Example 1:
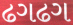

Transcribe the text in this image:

ઢગઢગ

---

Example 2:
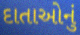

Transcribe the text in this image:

દાતાઓનું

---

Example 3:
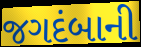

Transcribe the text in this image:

જગદંબાની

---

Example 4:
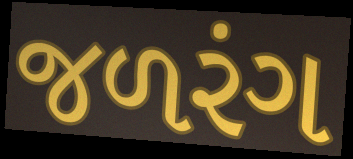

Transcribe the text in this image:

જળરંગ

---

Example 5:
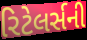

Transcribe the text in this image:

રિટેલર્સની